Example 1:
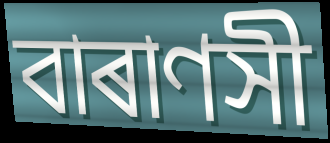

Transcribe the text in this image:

বাৰাণসী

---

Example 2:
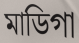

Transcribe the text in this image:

মাডিগা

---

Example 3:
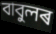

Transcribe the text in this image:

বাবুলৰ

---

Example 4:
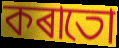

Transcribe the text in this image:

কৰাতো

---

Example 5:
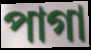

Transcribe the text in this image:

পাগা